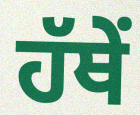
ਹੱਥੇਂ